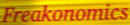
Freakonomics